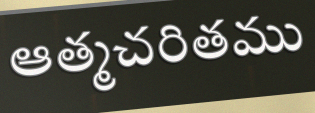
ఆత్మచరితము